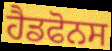
ਹੈਡਫੋਨਸ